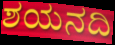
ಶಯನದಿ